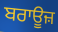
ਬਰਾਊਜ਼